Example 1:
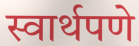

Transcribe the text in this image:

स्वार्थपणे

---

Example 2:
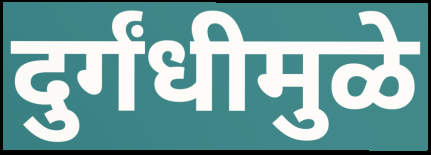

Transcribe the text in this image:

दुर्गंधीमुळे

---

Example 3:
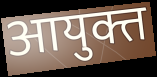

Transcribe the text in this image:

आयुक्त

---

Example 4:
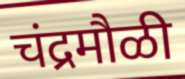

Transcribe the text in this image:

चंद्रमौळी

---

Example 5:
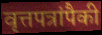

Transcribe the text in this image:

वृत्तपत्रांपैकी